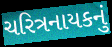
ચરિત્રનાયકનું